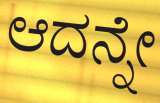
ಆದನ್ನೇ